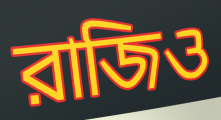
রাজিও